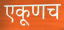
एकूणच